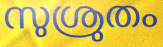
സുശ്രുതം